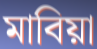
মাবিয়া